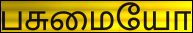
பசுமையோ